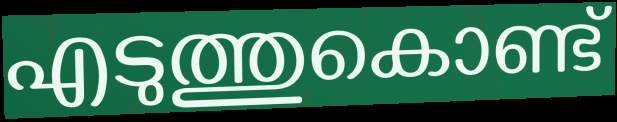
എടുത്തുകൊണ്ട്